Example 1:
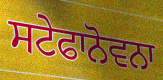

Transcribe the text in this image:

ਸਟੇਫਾਨੋਵਨਾ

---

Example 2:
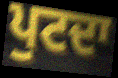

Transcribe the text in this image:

ਪੁਟਦਾ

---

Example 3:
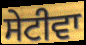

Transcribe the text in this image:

ਸੇਟੀਵਾ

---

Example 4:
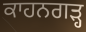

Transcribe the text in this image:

ਕਾਹਨਗੜ੍ਹ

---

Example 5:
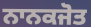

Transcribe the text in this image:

ਨਾਨਕਜੋਤ